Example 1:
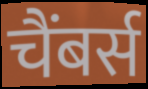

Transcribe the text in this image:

चैंबर्स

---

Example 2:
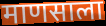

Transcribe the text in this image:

माणसाला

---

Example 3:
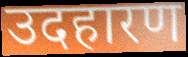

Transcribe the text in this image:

उदहारण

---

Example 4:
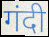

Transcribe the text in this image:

गंदी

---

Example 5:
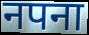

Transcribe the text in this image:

नपना